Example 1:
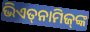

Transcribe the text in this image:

ଭିଏତ୍‌ନାମିଜ୍‌ଙ୍କ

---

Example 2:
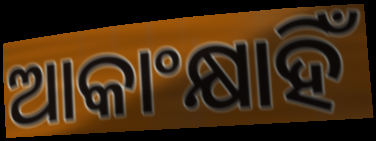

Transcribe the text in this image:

ଆକାଂକ୍ଷାହିଁ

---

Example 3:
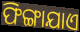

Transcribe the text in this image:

ଫିଙ୍ଗାଯାଏ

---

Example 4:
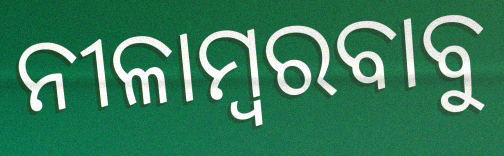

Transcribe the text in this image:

ନୀଳାମ୍ବରବାବୁ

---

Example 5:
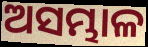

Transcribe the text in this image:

ଅସମ୍ଭାଳ